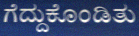
ಗೆದ್ದುಕೊಂಡಿತು